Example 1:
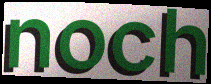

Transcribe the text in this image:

noch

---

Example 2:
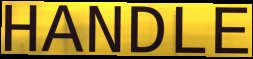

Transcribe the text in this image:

HANDLE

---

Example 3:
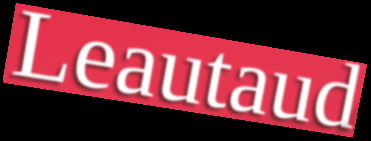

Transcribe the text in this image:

Leautaud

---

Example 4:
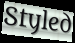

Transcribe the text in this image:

Styled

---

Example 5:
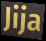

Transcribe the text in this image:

Jija